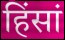
हिंसां